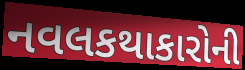
નવલકથાકારોની